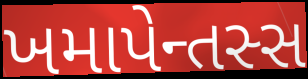
ખમાપેન્તસ્સ